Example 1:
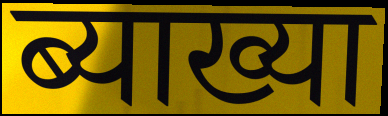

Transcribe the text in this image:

ब्याख्या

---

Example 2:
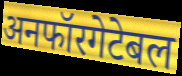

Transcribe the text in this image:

अनफॉरगेटेबल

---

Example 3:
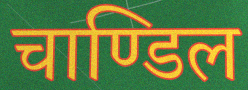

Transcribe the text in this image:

चाण्डिल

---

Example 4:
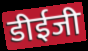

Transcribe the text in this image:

डीईजी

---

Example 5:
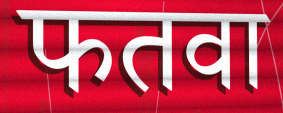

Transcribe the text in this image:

फतवा